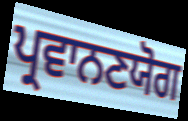
ਪ੍ਰਵਾਨਣਯੋਗ